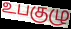
உபகுழு